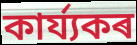
কাৰ্য্যকৰ